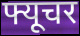
फ्यूचर